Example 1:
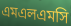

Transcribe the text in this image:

এমএলএমসি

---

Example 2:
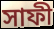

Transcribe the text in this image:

সাফী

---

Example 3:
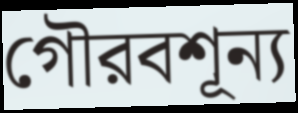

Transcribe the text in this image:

গৌরবশূন্য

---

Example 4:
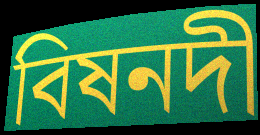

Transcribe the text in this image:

বিষনদী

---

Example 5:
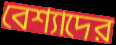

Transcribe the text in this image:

বেশ্যাদের